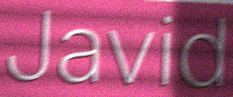
Javid